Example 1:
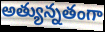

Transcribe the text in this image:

అత్యున్నతంగా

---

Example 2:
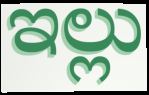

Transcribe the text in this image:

ఇల్లు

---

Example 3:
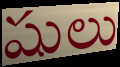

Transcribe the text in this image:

షులు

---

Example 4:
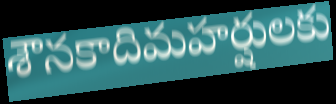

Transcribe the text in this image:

శౌనకాదిమహర్షులకు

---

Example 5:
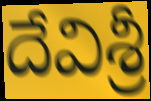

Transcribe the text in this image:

దేవిశ్రీ